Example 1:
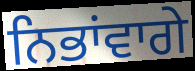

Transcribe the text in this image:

ਨਿਭਾਂਵਾਗੇ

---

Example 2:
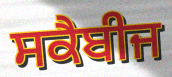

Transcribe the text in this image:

ਸਕੈਬੀਜ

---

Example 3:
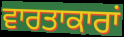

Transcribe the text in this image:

ਵਾਰਤਾਕਾਰਾਂ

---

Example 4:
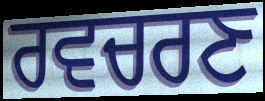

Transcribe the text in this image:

ਰਵਚਰਣ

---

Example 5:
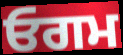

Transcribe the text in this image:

ਓਗਮ